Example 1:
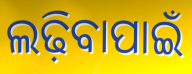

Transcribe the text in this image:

ଲଢ଼ିବାପାଇଁ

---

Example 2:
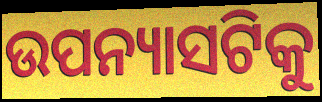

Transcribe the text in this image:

ଉପନ୍ୟାସଟିକୁ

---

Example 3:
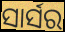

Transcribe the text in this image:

ସାର୍ସର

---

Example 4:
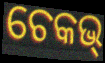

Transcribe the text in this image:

ଚେକଭ୍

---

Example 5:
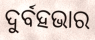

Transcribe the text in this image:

ଦୁର୍ବହଭାର